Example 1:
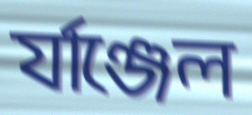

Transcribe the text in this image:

র্যাঞ্জেল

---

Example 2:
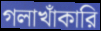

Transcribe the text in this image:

গলাখাঁকারি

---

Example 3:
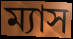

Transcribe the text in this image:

ম্যাস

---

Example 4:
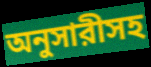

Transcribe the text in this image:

অনুসারীসহ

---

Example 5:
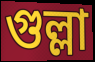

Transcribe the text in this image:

গুল্লা